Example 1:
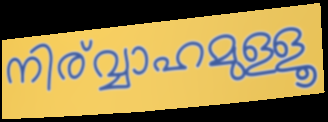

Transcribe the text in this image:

നിര്വ്വാഹമുള്ളൂ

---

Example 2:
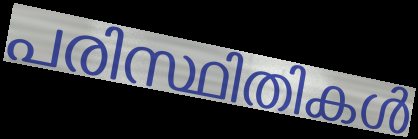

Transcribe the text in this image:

പരിസ്ഥിതികൾ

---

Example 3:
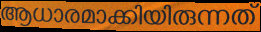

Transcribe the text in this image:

ആധാരമാക്കിയിരുന്നത്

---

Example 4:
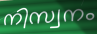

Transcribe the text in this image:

നിസ്വനം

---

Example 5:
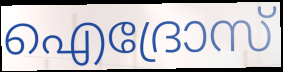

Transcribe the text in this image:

ഐദ്രോസ്